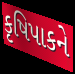
કૃષિપાકને